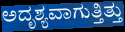
ಅದೃಶ್ಯವಾಗುತ್ತಿತ್ತು